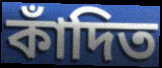
কাঁদিত